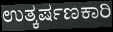
ಉತ್ಕರ್ಷಣಕಾರಿ